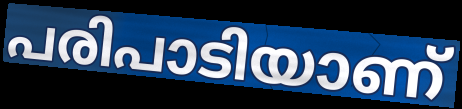
പരിപാടിയാണ്